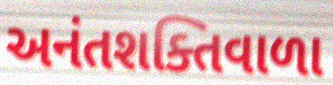
અનંતશક્તિવાળા